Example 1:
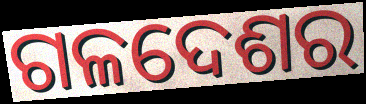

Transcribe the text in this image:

ଗଳଦେଶର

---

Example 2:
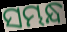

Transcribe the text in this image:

ସମ୍ଭନ୍ଧ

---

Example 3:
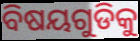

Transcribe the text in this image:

ବିଷୟଗୁଡିକୁ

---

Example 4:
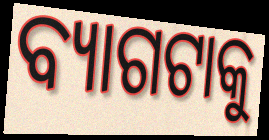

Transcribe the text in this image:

ବ୍ୟାଗଟାକୁ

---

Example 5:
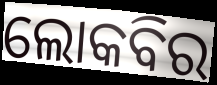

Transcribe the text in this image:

ଲୋକବିର